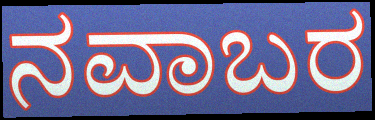
ನವಾಬರ